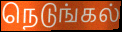
நெடுங்கல்